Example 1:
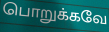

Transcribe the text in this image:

பொறுக்கவே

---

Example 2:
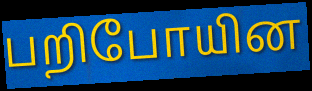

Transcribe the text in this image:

பறிபோயின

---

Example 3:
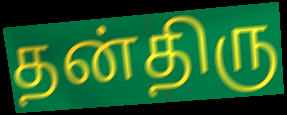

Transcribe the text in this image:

தன்திரு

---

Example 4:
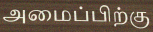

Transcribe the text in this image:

அமைப்பிற்கு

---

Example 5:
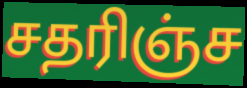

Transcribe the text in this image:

சதரிஞ்ச